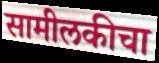
सामीलकीचा